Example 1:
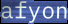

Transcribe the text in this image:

afyon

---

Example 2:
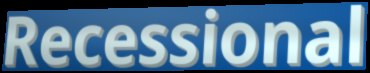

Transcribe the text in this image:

Recessional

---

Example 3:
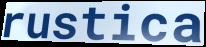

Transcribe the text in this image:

rustica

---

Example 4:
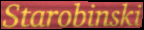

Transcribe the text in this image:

Starobinski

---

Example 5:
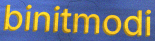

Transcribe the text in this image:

binitmodi